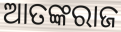
ଆତଙ୍କରାଜ